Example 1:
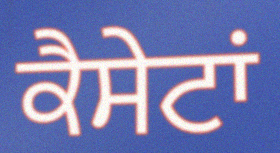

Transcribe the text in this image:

ਕੈਸੇਟਾਂ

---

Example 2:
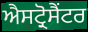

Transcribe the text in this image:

ਐਸਟ੍ਰੋਸੈਂਟਰ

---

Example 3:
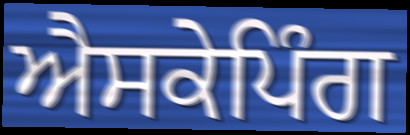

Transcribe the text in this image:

ਐਸਕੇਪਿੰਗ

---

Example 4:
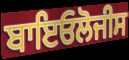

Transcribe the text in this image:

ਬਾਇਓਲੋਜੀਸ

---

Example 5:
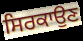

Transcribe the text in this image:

ਸਿਰਕਾਉਣ